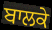
ਬਾਲਕੇ